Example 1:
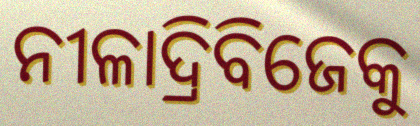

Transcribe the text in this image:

ନୀଳାଦ୍ରିବିଜେକୁ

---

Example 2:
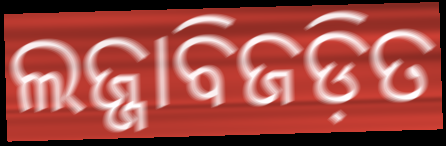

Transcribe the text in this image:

ଲଜ୍ଜାବିଜଡ଼ିତ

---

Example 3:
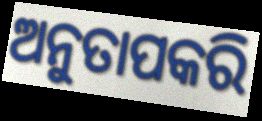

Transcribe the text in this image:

ଅନୁତାପକରି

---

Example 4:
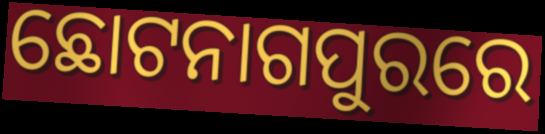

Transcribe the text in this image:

ଛୋଟନାଗପୁରରେ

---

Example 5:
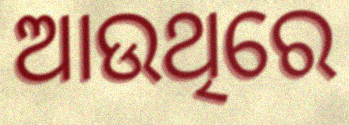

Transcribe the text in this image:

ଆଉଥିରେ